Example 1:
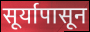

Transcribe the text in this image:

सूर्यापासून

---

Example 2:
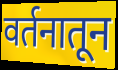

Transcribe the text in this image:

वर्तनातून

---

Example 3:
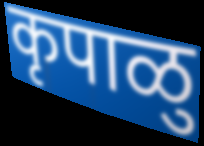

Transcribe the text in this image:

कृपाळु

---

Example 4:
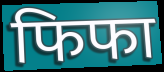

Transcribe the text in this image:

फिफा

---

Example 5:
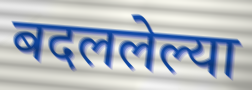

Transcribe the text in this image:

बदललेल्या